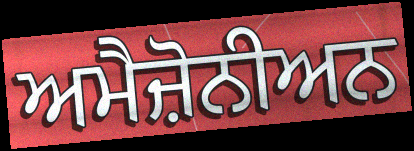
ਅਮੈਜ਼ੋਨੀਅਨ